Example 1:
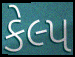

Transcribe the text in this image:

કેલ્પ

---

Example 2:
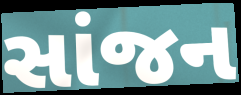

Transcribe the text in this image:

સાંજન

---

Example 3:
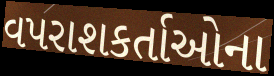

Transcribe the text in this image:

વપરાશકર્તાઓના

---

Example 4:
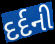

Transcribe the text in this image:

દર્દની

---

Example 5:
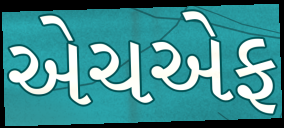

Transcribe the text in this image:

એચએફ